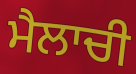
ਮੈਲਾਚੀ